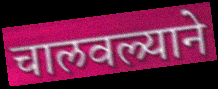
चालवल्याने